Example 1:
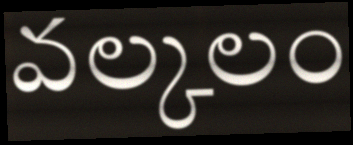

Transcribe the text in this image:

వల్కలం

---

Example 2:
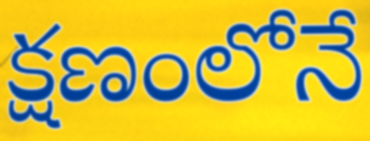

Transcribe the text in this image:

క్షణంలోనే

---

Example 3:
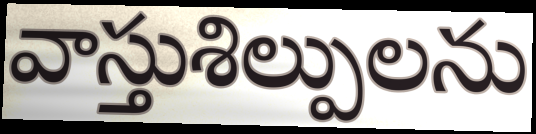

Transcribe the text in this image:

వాస్తుశిల్పులను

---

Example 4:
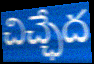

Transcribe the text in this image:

చిచ్ఛేద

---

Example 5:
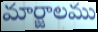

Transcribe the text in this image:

మార్జాలము